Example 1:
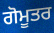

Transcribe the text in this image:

ਗੋਮੂਤਰ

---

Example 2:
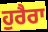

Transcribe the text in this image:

ਹੁਰੈਰਾ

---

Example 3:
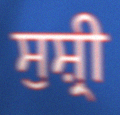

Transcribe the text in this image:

ਸੁਸ਼੍ਰੀ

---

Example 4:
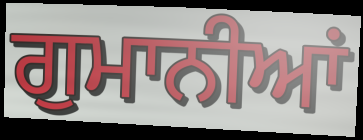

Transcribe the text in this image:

ਗੁਮਾਨੀਆਂ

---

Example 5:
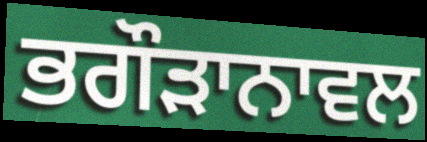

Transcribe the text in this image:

ਭਗੌੜਾਨਾਵਲ